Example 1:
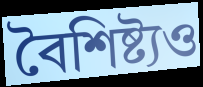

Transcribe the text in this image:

বৈশিষ্ট্যও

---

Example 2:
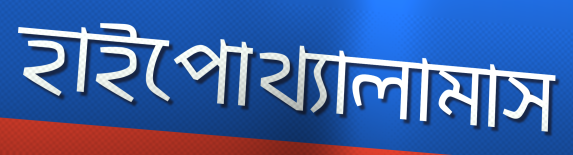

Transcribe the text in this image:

হাইপোথ্যালামাস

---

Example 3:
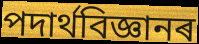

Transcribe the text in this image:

পদাৰ্থবিজ্ঞানৰ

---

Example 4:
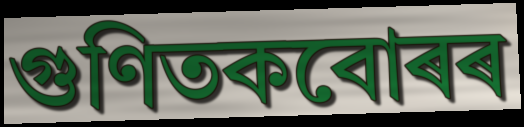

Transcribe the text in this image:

গুণিতকবোৰৰ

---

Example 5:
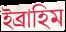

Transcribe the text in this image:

ইব্ৰাহিম